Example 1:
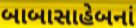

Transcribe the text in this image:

બાબાસાહેબનાં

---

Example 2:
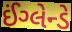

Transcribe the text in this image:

ઈંગ્લેન્ડે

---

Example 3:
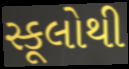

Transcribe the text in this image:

સ્કૂલોથી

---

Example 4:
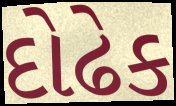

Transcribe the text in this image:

દોઢેક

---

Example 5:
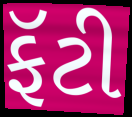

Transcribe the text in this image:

ફૅટી